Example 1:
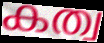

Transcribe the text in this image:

കത്വ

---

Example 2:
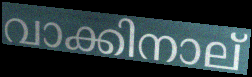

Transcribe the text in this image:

വാക്കിനാല്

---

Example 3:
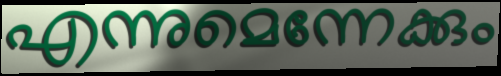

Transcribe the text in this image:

എന്നുമെന്നേക്കും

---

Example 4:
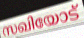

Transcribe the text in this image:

സഖിയോട്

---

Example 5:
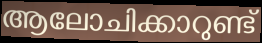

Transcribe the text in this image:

ആലോചിക്കാറുണ്ട്